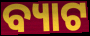
ବ୍ୟାଟ